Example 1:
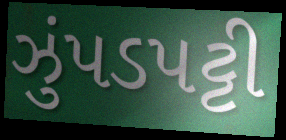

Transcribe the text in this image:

ઝુંપડપટ્ટી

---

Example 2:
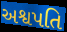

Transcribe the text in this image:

અશ્વપતિ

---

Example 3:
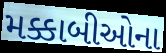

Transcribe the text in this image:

મક્કાબીઓના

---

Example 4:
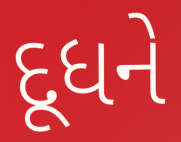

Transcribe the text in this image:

દૂધને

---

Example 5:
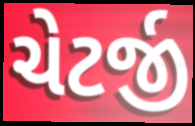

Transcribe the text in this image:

ચેટર્જી